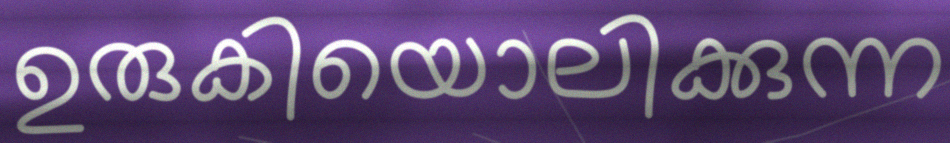
ഉരുകിയൊലിക്കുന്ന